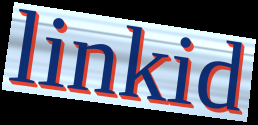
linkid